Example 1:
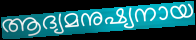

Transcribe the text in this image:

ആദ്യമനുഷ്യനായ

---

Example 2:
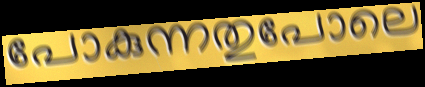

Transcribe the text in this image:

പോകുന്നതുപോലെ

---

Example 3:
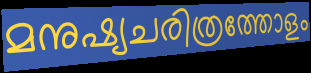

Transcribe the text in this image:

മനുഷ്യചരിത്രത്തോളം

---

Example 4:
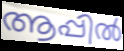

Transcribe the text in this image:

ആപ്പിൽ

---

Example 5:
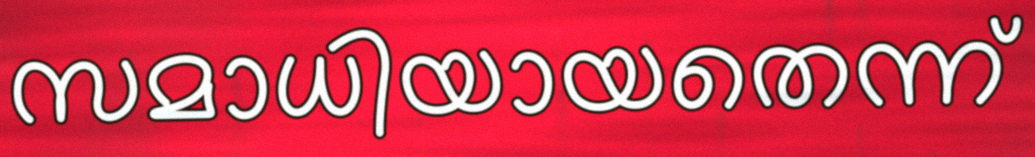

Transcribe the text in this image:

സമാധിയായതെന്ന്